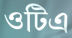
ওটিএ